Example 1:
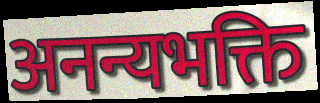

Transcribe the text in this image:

अनन्यभक्ति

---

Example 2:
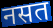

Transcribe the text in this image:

नसत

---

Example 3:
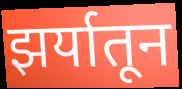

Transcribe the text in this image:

झर्यातून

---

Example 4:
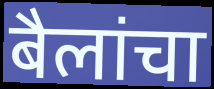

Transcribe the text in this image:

बैलांचा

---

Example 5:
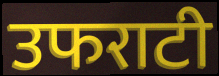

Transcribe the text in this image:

उफराटी